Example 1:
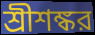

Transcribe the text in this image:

শ্রীশঙ্কর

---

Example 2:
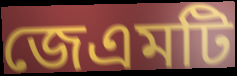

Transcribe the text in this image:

জেএমটি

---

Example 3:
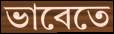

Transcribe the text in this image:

ভাবেতে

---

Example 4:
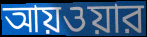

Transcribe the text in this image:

আয়ওয়ার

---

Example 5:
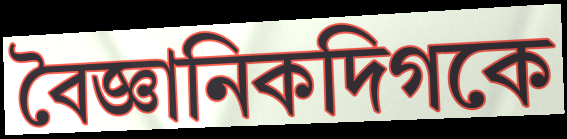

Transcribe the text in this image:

বৈজ্ঞানিকদিগকে